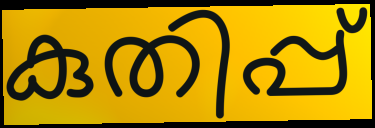
കുതിപ്പ്